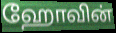
ஹோவின்